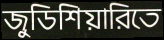
জুডিশিয়ারিতে